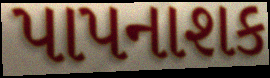
પાપનાશક